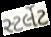
સ્ટર્લેટ